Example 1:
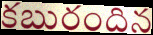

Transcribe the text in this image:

కబురందిన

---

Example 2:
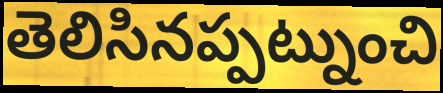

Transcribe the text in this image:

తెలిసినప్పట్నుంచి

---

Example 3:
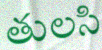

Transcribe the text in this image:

తులసి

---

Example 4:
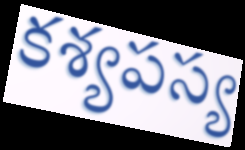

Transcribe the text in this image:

కశ్యపస్య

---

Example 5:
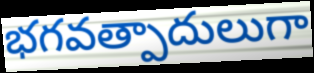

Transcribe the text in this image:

భగవత్పాదులుగా